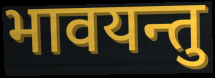
भावयन्तु